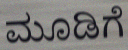
ಮೂಡಿಗೆ